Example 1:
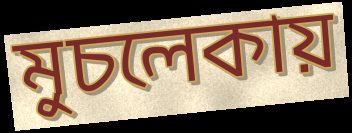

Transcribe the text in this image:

মুচলেকায়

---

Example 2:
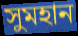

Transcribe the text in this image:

সুমহান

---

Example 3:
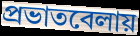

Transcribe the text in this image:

প্রভাতবেলায়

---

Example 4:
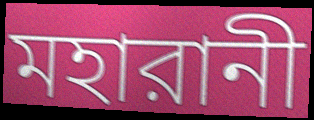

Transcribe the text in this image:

মহারানী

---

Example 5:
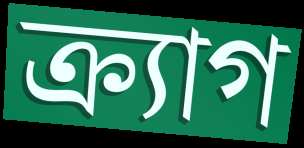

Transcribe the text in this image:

ক্র্যাগ